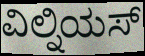
ವಿಲ್ನಿಯಸ್